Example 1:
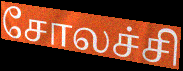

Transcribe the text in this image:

சோலச்சி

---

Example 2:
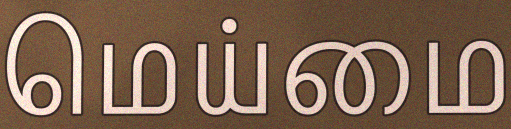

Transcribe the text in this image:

மெய்மை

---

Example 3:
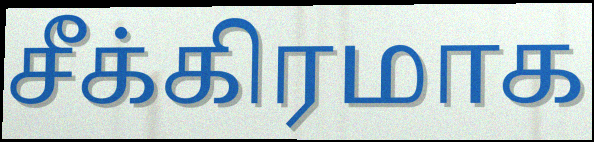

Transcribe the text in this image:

சீக்கிரமாக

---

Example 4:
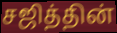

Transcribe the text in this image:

சஜித்தின்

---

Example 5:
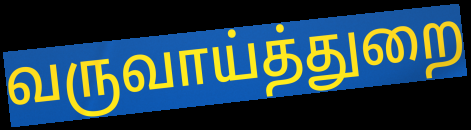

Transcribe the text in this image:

வருவாய்த்துறை